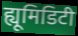
ह्यूमिडिटी